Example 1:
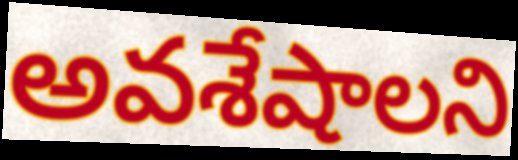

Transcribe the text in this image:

అవశేషాలని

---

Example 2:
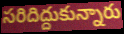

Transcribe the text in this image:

సరిదిద్దుకున్నారు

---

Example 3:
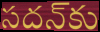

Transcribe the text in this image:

సదన్‌కు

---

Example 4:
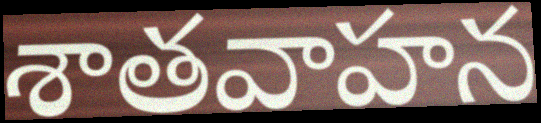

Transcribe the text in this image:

శాతవాహన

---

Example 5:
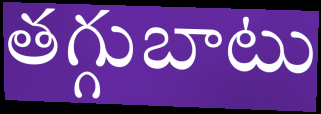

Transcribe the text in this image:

తగ్గుబాటు